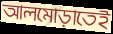
আলমোড়াতেই